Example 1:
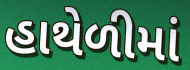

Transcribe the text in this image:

હાથેળીમાં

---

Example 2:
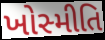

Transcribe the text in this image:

ખોસ્મીતિ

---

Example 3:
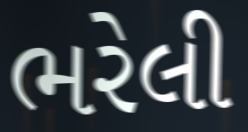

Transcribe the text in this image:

ભરેલી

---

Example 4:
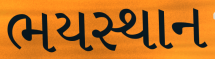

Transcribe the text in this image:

ભયસ્થાન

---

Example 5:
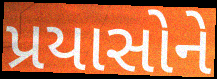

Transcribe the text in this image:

પ્રયાસોને